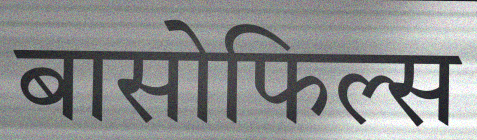
बासोफिल्स